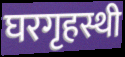
घरगृहस्थी